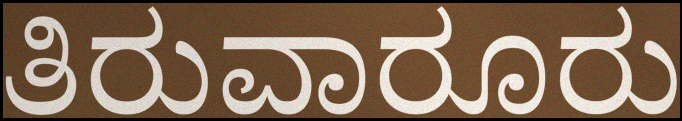
ತಿರುವಾರೂರು